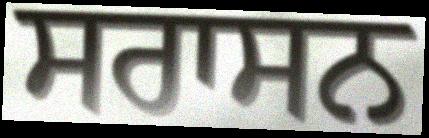
ਸਰਾਸਨ